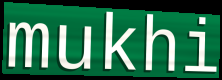
mukhi